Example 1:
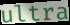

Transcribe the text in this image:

ultra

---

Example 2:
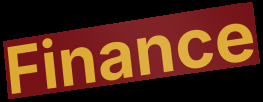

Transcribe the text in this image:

Finance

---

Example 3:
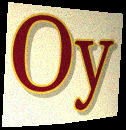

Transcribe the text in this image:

Oy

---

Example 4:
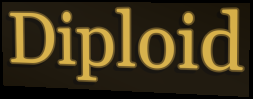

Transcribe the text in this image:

Diploid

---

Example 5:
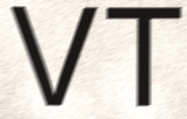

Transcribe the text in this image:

VT